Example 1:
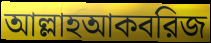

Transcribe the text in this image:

আল্লাহআকবরিজ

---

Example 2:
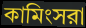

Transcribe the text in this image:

কামিংসরা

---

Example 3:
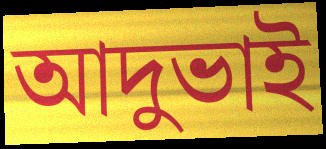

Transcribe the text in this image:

আদুভাই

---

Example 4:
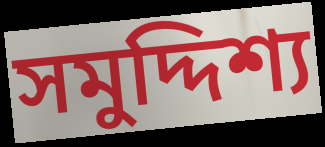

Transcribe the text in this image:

সমুদ্দিশ্য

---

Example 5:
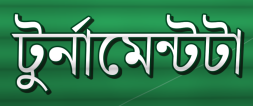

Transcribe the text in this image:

টুর্নামেন্টটা